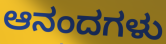
ಆನಂದಗಳು